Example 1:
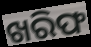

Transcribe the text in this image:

ଖରିଫ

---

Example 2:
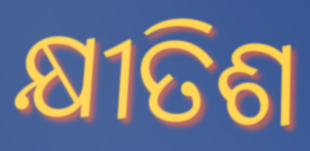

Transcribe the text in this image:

କ୍ଷୀତିଶ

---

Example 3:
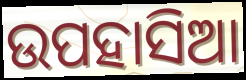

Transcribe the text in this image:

ଉପହାସିଆ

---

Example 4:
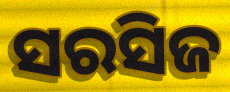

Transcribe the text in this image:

ସରସିଜ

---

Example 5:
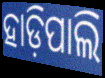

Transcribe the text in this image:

ହାଡ଼ିପାଲି